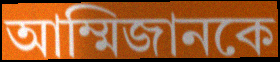
আম্মিজানকে